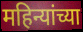
महिन्यांच्या